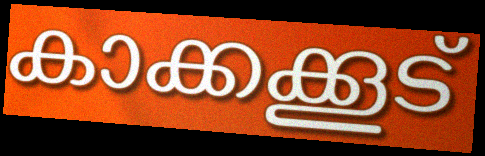
കാക്കക്കൂട്